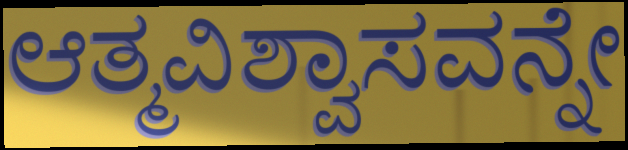
ಆತ್ಮವಿಶ್ವಾಸವನ್ನೇ